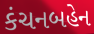
કંચનબહેન